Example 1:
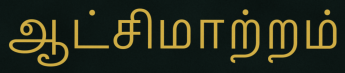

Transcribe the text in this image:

ஆட்சிமாற்றம்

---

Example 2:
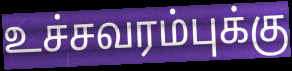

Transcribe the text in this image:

உச்சவரம்புக்கு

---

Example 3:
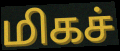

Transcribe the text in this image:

மிகச்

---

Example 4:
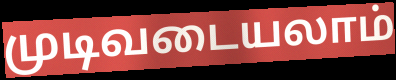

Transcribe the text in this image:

முடிவடையலாம்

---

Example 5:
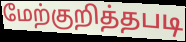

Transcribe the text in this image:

மேற்குறித்தபடி